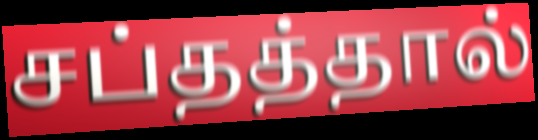
சப்தத்தால்